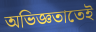
অভিজ্ঞতাতেই